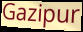
Gazipur